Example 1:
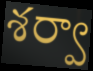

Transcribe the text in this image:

శర్వా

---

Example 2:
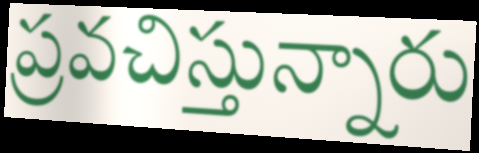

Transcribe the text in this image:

ప్రవచిస్తున్నారు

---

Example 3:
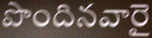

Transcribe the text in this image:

పొందినవారై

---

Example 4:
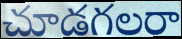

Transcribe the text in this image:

చూడగలరా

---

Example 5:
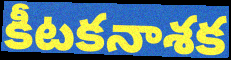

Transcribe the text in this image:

కీటకనాశక